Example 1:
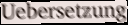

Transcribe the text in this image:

Uebersetzung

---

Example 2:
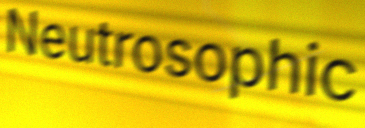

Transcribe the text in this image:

Neutrosophic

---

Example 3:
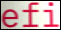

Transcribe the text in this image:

efi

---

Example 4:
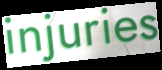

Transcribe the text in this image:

injuries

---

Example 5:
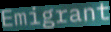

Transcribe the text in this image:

Emigrant